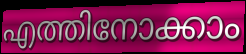
എത്തിനോക്കാം